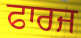
ਫਾਰਜ